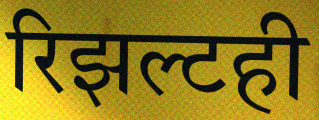
रिझल्टही